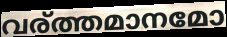
വര്ത്തമാനമോ